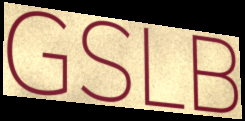
GSLB